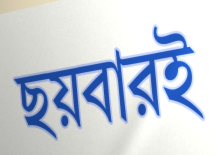
ছয়বারই